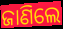
ଜାଣିଲେ